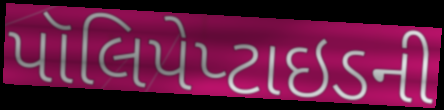
પૉલિપેપ્ટાઇડની